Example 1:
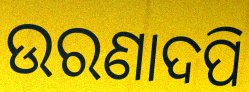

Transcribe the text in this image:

ଉରଣାଦପି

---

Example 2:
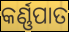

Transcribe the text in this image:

କର୍ଣ୍ଣପାତ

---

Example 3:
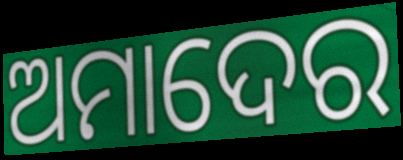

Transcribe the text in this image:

ଅମାଦେର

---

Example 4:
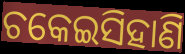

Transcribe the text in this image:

ଚକେଇସିହାଣି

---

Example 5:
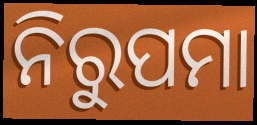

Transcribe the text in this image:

ନିରୁପମା